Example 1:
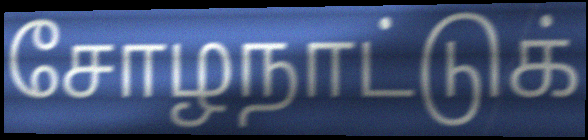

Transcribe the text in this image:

சோழநாட்டுக்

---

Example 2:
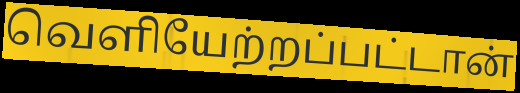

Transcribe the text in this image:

வெளியேற்றப்பட்டான்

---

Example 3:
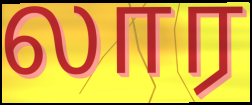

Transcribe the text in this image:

லார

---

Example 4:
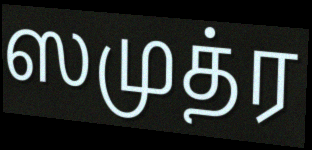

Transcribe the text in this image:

ஸமுத்ர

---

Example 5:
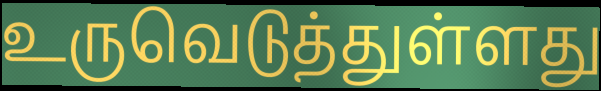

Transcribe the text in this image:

உருவெடுத்துள்ளது